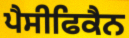
ਪੈਸੀਫਿਕੈਨ